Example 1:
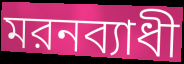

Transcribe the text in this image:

মরনব্যাধী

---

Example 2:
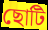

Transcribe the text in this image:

ছোটি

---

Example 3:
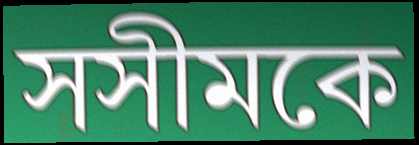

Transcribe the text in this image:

সসীমকে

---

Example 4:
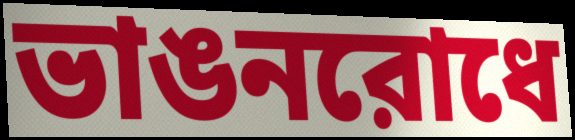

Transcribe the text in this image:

ভাঙনরোধে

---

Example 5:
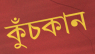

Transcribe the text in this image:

কুঁচকান